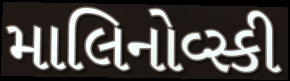
માલિનોવ્સ્કી